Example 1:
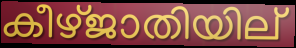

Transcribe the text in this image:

കീഴ്ജാതിയില്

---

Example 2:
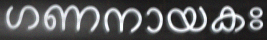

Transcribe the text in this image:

ഗണനായകഃ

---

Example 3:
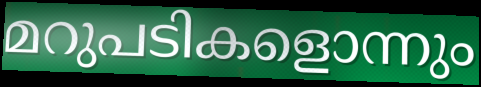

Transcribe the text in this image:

മറുപടികളൊന്നും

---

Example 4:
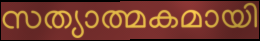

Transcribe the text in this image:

സത്യാത്മകമായി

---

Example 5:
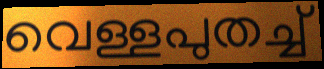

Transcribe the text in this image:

വെള്ളപുതച്ച്